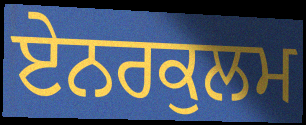
ਏਨਰਕੁਲਮ